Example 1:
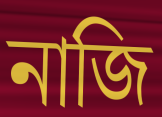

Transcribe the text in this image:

নাজি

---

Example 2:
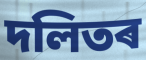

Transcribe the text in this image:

দলিতৰ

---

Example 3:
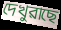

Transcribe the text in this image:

দেখুৱাছে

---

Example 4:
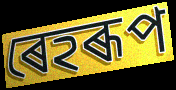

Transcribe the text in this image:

ৰেহৰূপ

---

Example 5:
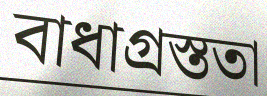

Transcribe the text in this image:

বাধাগ্ৰস্ততা